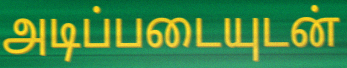
அடிப்படையுடன்